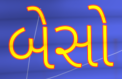
બેસો